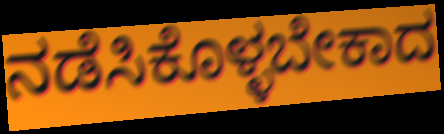
ನಡೆಸಿಕೊಳ್ಳಬೇಕಾದ